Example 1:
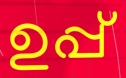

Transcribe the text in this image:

ഉപ്പ്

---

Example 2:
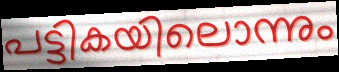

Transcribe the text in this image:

പട്ടികയിലൊന്നും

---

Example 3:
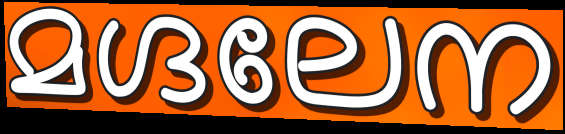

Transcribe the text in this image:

മഗ്ദലേന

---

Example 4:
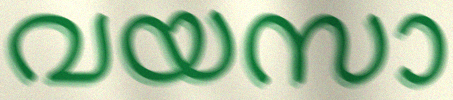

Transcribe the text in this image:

വയസാ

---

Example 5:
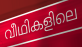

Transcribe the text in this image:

വീഥികളിലെ